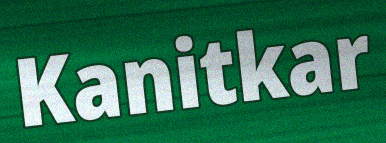
Kanitkar